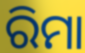
ରିମା